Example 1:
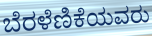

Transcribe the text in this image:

ಬೆರಳೆಣಿಕೆಯವರು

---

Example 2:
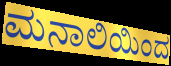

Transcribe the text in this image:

ಮನಾಲಿಯಿಂದ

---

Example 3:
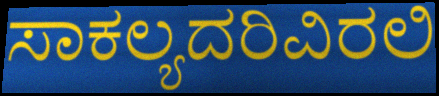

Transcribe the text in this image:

ಸಾಕಲ್ಯದರಿವಿರಲಿ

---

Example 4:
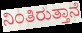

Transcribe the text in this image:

ನಿಂತಿರುತ್ತಾನೆ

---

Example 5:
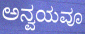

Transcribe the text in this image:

ಅನ್ವಯವೂ